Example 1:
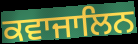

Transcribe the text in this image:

ਕਵਾਜਾਲਿਨ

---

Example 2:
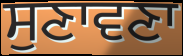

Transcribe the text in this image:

ਸੁਣਾਵਣਾ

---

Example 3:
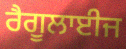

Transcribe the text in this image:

ਰੈਗੂਲਾਈਜ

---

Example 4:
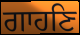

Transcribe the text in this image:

ਗਾਹਣਿ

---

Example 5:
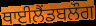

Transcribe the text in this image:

ਥਾਈਲੈਂਡਬਲੌਗ